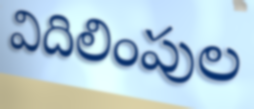
విదిలింపుల